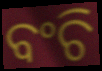
ବଂଚି